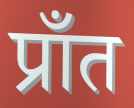
प्राँत